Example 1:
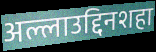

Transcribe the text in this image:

अल्लाउद्दिनशहा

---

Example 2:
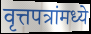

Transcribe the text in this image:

वृत्तपत्रांमध्ये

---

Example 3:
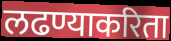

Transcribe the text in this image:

लढण्याकरिता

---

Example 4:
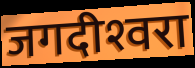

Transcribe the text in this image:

जगदीश्वरा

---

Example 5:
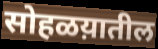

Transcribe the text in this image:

सोहळय़ातील